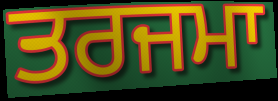
ਤਰਜਮਾ